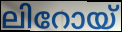
ലിറോയ്